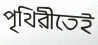
পৃথিৱীতেই